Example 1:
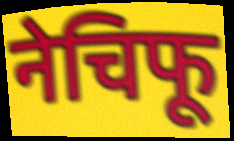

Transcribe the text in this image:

नेचिफू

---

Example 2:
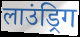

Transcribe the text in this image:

लाउंड्रिग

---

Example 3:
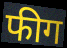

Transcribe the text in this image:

फीग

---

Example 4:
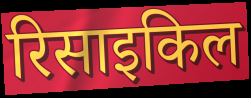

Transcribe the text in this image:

रिसाइकिल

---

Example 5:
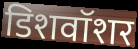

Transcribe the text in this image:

डिशवॉशर